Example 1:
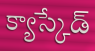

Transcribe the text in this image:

క్యాస్కేడ్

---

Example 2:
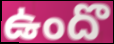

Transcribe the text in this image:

ఉందొ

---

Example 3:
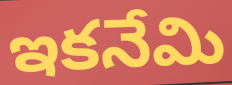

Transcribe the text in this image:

ఇకనేమి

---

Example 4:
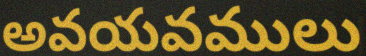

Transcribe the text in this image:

అవయవములు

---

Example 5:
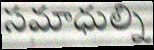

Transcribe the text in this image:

సమాధుల్ని